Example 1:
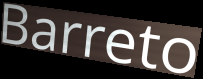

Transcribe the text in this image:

Barreto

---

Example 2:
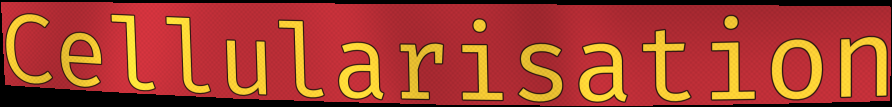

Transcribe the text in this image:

Cellularisation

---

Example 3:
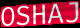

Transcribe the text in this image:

OSHAJ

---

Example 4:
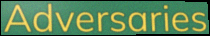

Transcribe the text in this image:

Adversaries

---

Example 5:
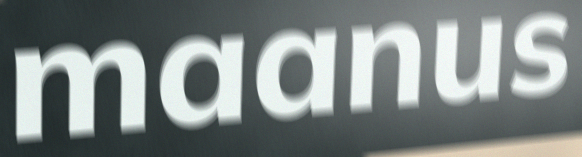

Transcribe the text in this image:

maanus